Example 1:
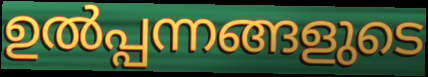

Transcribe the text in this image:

ഉൽപ്പന്നങ്ങളുടെ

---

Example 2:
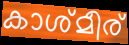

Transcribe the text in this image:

കാശ്മീര്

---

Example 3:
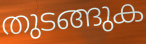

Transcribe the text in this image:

തുടങ്ങുക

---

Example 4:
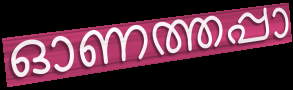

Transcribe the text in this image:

ഓണത്തപ്പാ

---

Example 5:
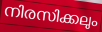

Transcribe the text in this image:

നിരസിക്കലും